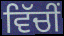
ਵਿੱਚੀਂ